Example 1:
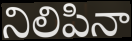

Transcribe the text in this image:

నిలిపినా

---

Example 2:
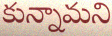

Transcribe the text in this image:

కున్నామని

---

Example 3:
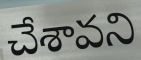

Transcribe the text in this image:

చేశావని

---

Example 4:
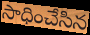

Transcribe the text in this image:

సాధించేసిన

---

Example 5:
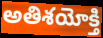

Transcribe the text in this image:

అతిశయోక్తి